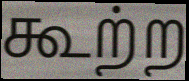
கூற்ற